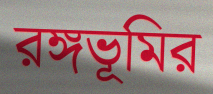
রঙ্গভূমির